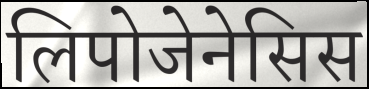
लिपोजेनेसिस